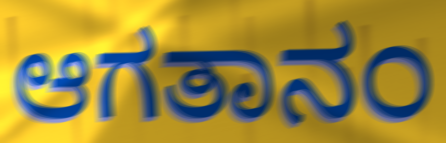
ಆಗತಾನಂ